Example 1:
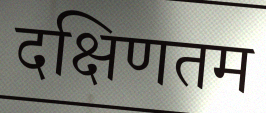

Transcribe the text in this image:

दक्षिणतम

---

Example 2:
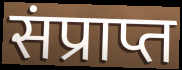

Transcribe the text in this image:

संप्राप्त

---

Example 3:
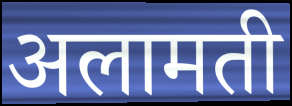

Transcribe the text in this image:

अलामती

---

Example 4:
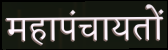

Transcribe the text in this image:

महापंचायतों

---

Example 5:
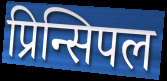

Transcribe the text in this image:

प्रिन्सिपल